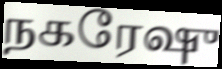
நகரேஷு